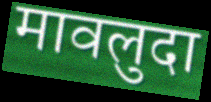
मावलुदा